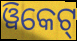
ୱିକେଟ୍